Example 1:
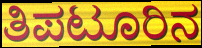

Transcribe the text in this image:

ತಿಪಟೂರಿನ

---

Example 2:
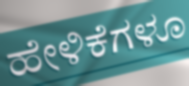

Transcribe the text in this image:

ಹೇಳಿಕೆಗಳೂ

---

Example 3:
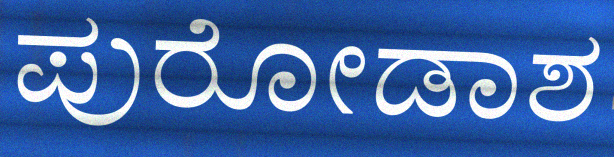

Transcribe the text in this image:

ಪುರೋಡಾಶ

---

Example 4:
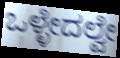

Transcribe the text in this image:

ಒಳ್ಳೇದಲ್ವೇ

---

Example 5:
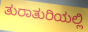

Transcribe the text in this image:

ತುರಾತುರಿಯಲ್ಲಿ